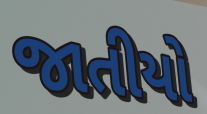
જાતીયો